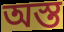
অস্ত